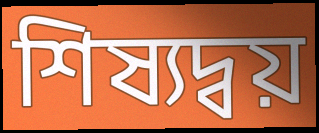
শিষ্যদ্বয়